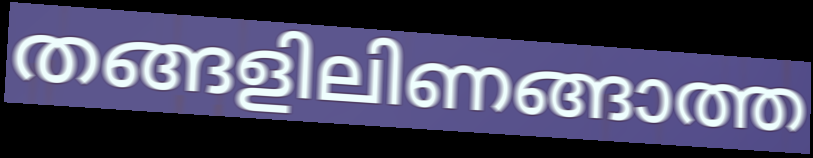
തങ്ങളിലിണങ്ങാത്ത